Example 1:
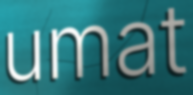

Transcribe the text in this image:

umat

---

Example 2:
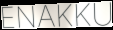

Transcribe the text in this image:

ENAKKU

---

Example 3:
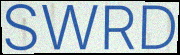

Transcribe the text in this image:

SWRD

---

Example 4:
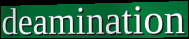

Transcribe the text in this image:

deamination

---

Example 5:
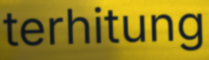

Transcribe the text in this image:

terhitung